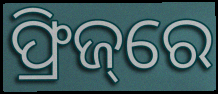
ଫ୍ରିଜ୍‌ରେ